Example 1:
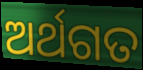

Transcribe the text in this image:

ଅର୍ଥଗତ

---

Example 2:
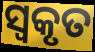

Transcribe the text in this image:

ସ୍ୱକୃତ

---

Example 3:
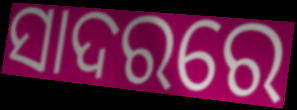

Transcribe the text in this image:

ସାଦରରେ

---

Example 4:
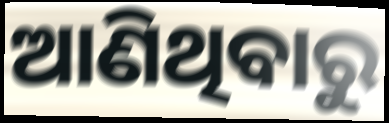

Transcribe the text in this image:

ଆଣିଥିବାରୁ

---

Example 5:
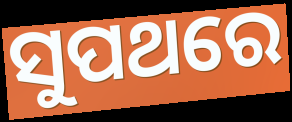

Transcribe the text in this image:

ସୁପଥରେ